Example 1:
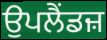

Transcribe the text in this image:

ਉਪਲੈਂਡਜ਼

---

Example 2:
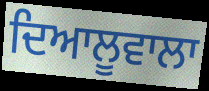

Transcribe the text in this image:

ਦਿਆਲੂਵਾਲਾ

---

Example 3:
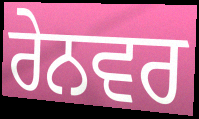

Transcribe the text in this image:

ਰੇਨਵਰ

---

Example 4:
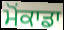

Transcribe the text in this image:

ਮੋਂਕਾਡਾ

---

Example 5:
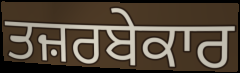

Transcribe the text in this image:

ਤਜ਼ਰਬੇਕਾਰ